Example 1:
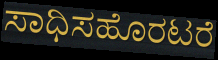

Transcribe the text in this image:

ಸಾಧಿಸಹೊರಟರೆ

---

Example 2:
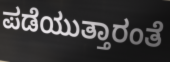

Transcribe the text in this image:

ಪಡೆಯುತ್ತಾರಂತೆ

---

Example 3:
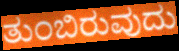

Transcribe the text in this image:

ತುಂಬಿರುವುದು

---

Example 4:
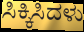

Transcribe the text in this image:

ಸಿಕ್ಕಿಸಿದಳು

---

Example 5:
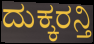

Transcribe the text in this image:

ದುಕ್ಕರನ್ತಿ